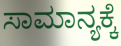
ಸಾಮಾನ್ಯಕ್ಕೆ